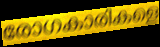
രോഗകാരികളെ